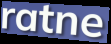
ratne